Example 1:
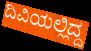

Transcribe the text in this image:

ದಿವಿಯಲ್ಲಿದ್ದ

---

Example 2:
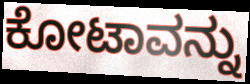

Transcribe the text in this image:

ಕೋಟಾವನ್ನು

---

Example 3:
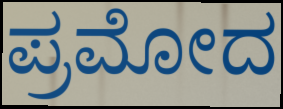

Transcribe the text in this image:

ಪ್ರಮೋದ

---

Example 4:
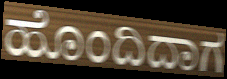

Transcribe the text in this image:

ಹೊಂದಿದಾಗ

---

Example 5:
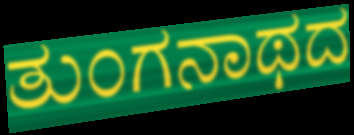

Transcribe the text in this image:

ತುಂಗನಾಥದ